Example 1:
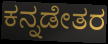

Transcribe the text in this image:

ಕನ್ನಡೇತರ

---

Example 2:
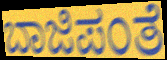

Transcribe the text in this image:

ಬಾಜಿಪಂತೆ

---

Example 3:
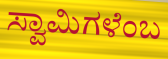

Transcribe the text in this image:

ಸ್ವಾಮಿಗಳೆಂಬ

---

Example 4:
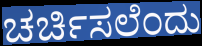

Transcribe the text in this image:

ಚರ್ಚಿಸಲೆಂದು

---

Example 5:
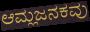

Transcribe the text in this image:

ಆಮ್ಲಜನಕವು